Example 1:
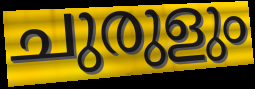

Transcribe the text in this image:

ചുരുളും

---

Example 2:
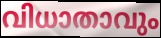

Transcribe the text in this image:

വിധാതാവും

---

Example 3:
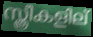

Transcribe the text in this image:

സ്ത്രീകളില്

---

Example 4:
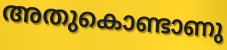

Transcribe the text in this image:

അതുകൊണ്ടാണു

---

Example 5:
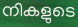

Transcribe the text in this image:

നികളുടെ